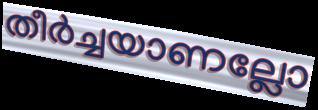
തീർച്ചയാണല്ലോ